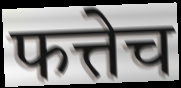
फत्तेच